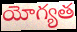
యోగ్యత